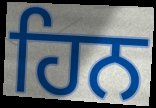
ਹਿਨ